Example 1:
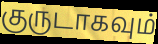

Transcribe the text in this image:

குருடாகவும்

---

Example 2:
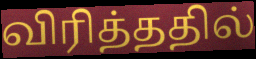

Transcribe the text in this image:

விரித்ததில்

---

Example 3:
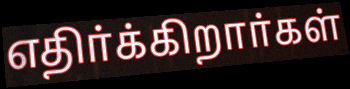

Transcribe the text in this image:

எதிர்க்கிறார்கள்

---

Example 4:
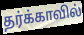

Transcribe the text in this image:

தர்க்காவில்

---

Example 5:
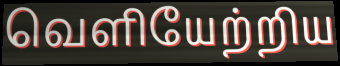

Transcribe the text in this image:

வெளியேற்றிய